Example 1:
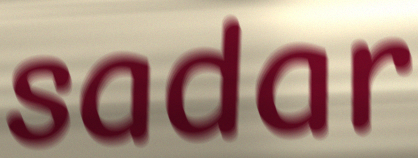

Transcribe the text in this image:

sadar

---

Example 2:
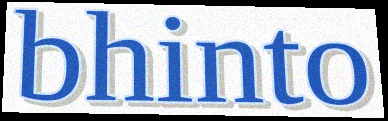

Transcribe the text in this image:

bhinto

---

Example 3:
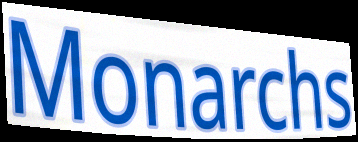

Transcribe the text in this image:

Monarchs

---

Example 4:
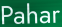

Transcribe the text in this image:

Pahar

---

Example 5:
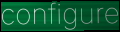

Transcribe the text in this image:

configure